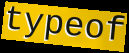
typeof